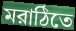
মরাঠিতে